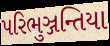
પરિભુઞ્જન્તિયા